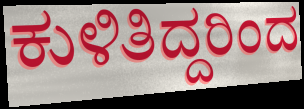
ಕುಳಿತಿದ್ದರಿಂದ